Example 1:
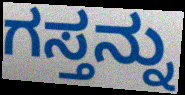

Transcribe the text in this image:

ಗಸ್ತನ್ನು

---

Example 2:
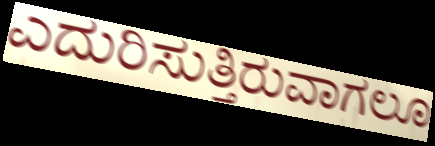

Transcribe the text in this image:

ಎದುರಿಸುತ್ತಿರುವಾಗಲೂ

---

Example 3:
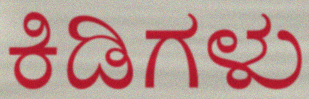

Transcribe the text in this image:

ಕಿಡಿಗಳು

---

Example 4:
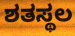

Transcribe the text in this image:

ಶತಸ್ಥಲ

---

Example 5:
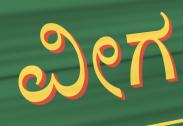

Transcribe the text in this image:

ವೀಗ